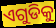
ଏଗୁଡିକୁ